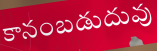
కానంబడుదువు